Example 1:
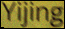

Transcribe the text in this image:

Yijing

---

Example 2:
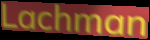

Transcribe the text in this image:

Lachman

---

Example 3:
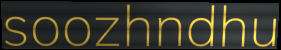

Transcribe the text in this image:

soozhndhu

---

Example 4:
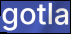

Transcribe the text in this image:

gotla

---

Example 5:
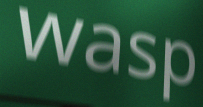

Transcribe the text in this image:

wasp